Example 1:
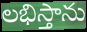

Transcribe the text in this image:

లభిస్తాను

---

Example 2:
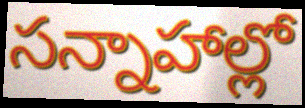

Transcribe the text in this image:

సన్నాహాల్లో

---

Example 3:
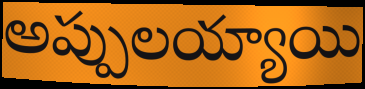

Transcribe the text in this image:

అప్పులయ్యాయి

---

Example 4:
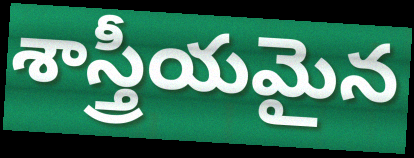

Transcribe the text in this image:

శాస్త్రీయమైన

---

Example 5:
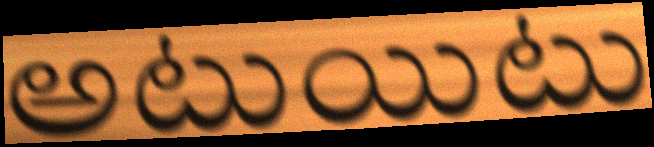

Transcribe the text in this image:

అటుయిటు